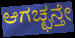
ಆಗಚ್ಛನ್ತೇ